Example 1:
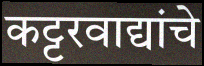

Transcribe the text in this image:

कट्टरवाद्यांचे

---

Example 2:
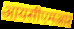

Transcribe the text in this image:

आयसीएमआर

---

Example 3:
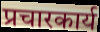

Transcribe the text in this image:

प्रचारकार्य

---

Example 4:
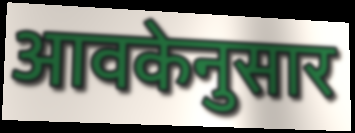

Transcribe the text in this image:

आवकेनुसार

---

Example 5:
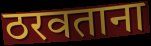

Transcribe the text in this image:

ठरवताना